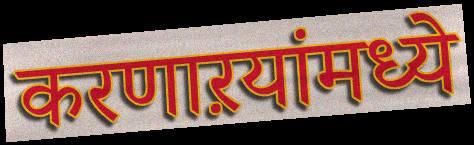
करणाऱयांमध्ये